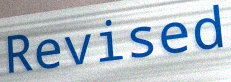
Revised